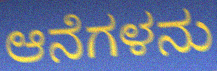
ಆನೆಗಳನು